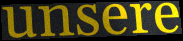
unsere